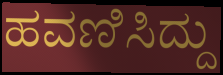
ಹವಣಿಸಿದ್ದು